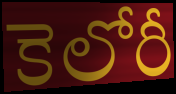
కెలోరీ